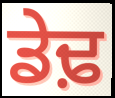
ਡੇਢ਼